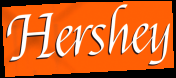
Hershey